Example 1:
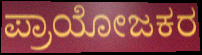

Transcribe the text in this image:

ಪ್ರಾಯೋಜಕರ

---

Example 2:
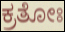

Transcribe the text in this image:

ಕ್ರತೋಃ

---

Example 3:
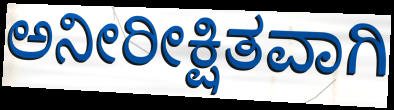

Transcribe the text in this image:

ಅನೀರೀಕ್ಷಿತವಾಗಿ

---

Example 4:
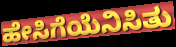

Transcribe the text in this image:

ಹೇಸಿಗೆಯೆನಿಸಿತು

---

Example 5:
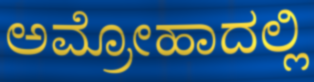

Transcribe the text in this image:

ಅಮ್ರೋಹಾದಲ್ಲಿ